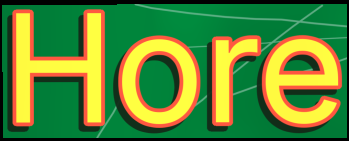
Hore